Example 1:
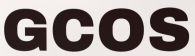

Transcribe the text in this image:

GCOS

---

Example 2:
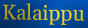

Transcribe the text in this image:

Kalaippu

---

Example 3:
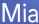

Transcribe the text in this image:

Mia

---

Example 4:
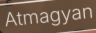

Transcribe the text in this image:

Atmagyan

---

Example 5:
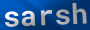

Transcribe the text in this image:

sarsh